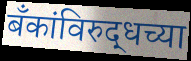
बँकांविरुद्धच्या